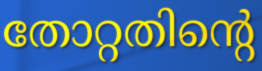
തോറ്റതിന്റെ